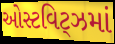
ઓસ્ટવિટ્ઝમાં